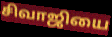
சிவாஜியை